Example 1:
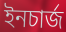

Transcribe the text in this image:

ইনচার্জ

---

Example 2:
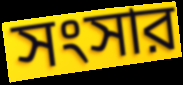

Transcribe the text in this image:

সংসার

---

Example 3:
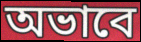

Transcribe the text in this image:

অভাবে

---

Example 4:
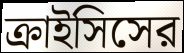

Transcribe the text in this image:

ক্রাইসিসের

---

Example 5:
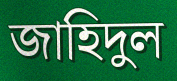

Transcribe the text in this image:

জাহিদুল